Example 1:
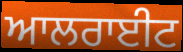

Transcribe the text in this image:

ਆਲਰਾਈਟ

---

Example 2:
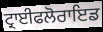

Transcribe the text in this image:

ਟ੍ਰਾਈਫਲੋਰਾਇਡ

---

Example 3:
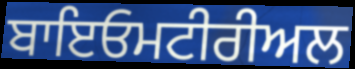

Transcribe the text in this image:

ਬਾਇਓਮਟੀਰੀਅਲ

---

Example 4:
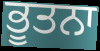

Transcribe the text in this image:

ਭੂਤਨਾ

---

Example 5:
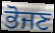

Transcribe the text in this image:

ਭੋਜਣ